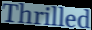
Thrilled